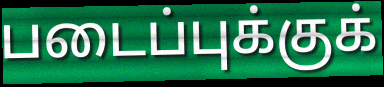
படைப்புக்குக்